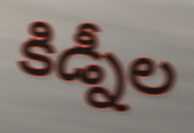
కిడ్నీల